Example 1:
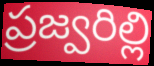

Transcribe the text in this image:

ప్రజ్వరిల్లి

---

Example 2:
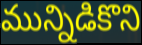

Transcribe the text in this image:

మున్నిడికొని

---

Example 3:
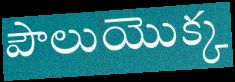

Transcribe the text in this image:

పౌలుయొక్క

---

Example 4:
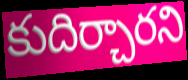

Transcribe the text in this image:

కుదిర్చారని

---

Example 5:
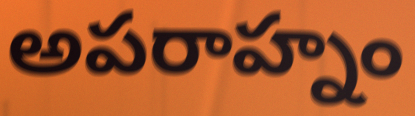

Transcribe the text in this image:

అపరాహ్నం